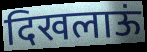
दिखलाऊं